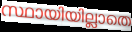
സ്ഥായിയില്ലാതെ